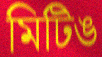
মিটিঙ